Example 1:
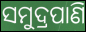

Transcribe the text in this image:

ସମୁଦ୍ରପାଣି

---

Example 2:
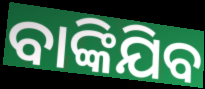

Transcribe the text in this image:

ବାଙ୍କିଯିବ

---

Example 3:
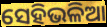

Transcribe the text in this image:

ସେହିଭଳିଆ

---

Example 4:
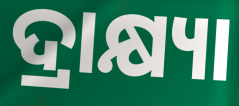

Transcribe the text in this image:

ଦ୍ରାକ୍ଷ୍ୟା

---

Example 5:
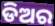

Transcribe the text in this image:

ଡିଅର